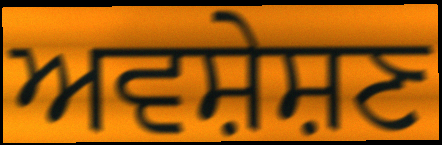
ਅਵਸ਼ੇਸ਼ਣ